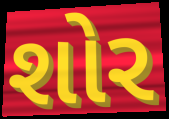
શોર